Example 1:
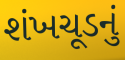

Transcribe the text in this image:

શંખચૂડનું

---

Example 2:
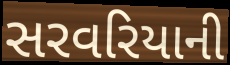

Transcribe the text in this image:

સરવરિયાની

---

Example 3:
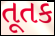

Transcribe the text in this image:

તૂતક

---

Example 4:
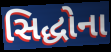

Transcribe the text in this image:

સિદ્ધોના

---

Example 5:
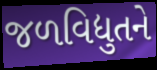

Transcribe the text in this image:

જળવિદ્યુતને